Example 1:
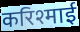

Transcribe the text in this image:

करिश्माई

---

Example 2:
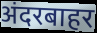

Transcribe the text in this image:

अंदरबाहर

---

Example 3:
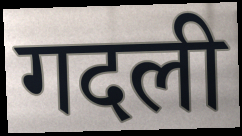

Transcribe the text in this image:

गदली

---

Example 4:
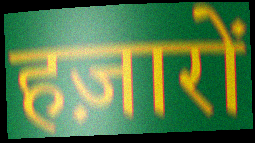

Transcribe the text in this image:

हज़ारों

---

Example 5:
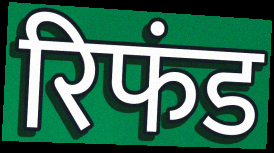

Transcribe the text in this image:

रिफंड